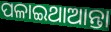
ପଳାଇଥାଆନ୍ତା